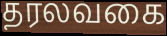
தரலவகை